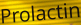
Prolactin